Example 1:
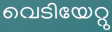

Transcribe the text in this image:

വെടിയേറ്റു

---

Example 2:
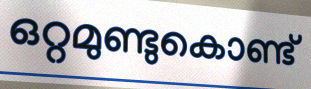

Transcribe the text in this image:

ഒറ്റമുണ്ടുകൊണ്ട്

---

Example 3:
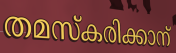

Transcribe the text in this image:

തമസ്കരിക്കാന്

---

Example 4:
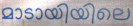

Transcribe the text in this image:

മാടായിയിലെ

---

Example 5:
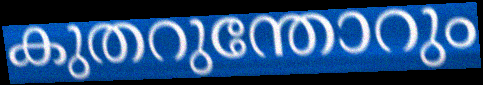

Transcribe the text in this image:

കുതറുന്തോറും